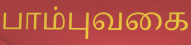
பாம்புவகை